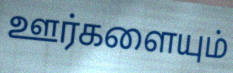
ஊர்களையும்